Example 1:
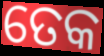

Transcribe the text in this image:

ତେକ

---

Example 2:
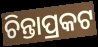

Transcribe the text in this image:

ଚିନ୍ତାପ୍ରକଟ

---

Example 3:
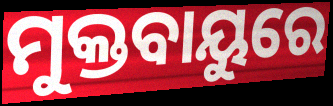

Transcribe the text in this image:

ମୁକ୍ତବାୟୁରେ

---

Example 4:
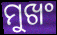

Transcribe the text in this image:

ମୁଖଂ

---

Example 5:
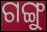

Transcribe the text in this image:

ଗଙ୍ଗୁ